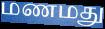
மணமது